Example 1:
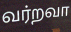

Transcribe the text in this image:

வர்றவா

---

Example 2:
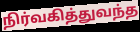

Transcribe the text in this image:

நிர்வகித்துவந்த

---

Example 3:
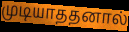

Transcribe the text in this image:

முடியாததனால்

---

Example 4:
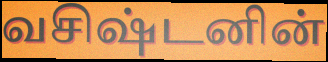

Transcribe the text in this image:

வசிஷ்டனின்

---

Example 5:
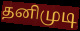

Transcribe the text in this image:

தனிமுடி